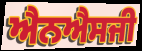
ਐਨਐਸਜੀ